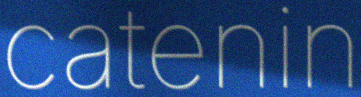
catenin